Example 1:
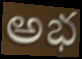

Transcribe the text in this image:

అభ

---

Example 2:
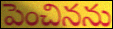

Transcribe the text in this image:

పెంచినను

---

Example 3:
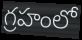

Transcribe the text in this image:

గ్రహంలో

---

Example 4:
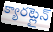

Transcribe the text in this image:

క్యారట్లైన్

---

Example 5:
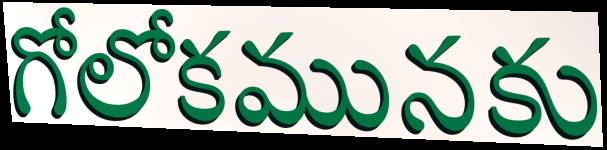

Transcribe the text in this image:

గోలోకమునకు